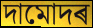
দামোদৰ